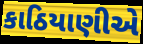
કાઠિયાણીએ